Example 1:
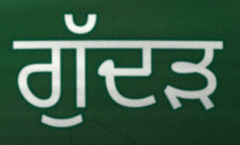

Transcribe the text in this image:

ਗੁੱਦੜ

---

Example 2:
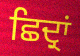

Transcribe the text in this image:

ਛਿਦ੍ਰਾਂ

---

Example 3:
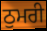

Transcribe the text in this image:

ਠੁਮਰੀ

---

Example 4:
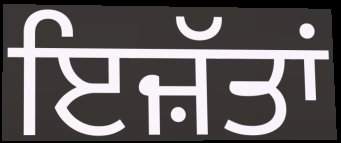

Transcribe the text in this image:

ਇਜ਼ੱਤਾਂ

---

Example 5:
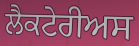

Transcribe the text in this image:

ਲੈਕਟੇਰੀਅਸ